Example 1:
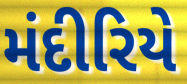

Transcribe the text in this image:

મંદીરિયે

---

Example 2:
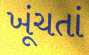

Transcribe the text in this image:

ખૂંચતાં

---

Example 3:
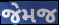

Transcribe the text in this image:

જેમજ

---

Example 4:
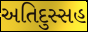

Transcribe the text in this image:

અતિદુસ્સહ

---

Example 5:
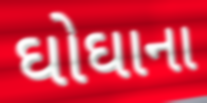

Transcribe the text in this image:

ઘોઘાના